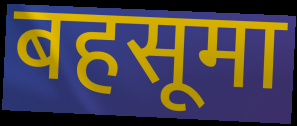
बहसूमा